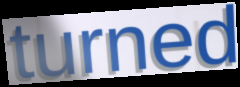
turned